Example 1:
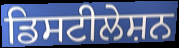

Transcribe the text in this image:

ਡਿਸਟੀਲੇਸ਼ਨ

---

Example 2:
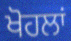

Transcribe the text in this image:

ਖੋਹਲਾਂ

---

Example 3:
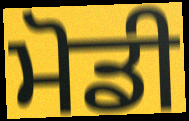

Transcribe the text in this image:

ਮੋਡੀ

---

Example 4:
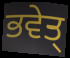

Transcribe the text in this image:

ਭਵੇਤ੍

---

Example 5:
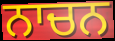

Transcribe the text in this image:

ਨਾਚਨ